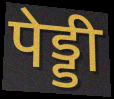
पेड्डी